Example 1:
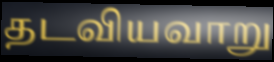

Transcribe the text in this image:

தடவியவாறு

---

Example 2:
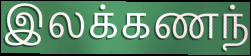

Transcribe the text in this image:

இலக்கணந்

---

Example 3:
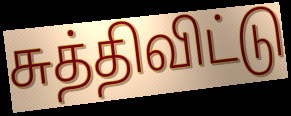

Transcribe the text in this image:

சுத்திவிட்டு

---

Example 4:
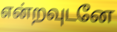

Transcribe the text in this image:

என்றவுடனே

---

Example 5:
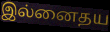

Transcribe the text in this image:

இல்னைதய